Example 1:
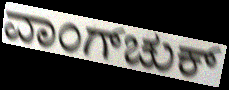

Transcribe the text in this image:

ವಾಂಗ್‌ಚುಕ್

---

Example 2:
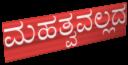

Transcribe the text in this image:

ಮಹತ್ವವಲ್ಲದ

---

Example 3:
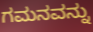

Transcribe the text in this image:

ಗಮನವನ್ನು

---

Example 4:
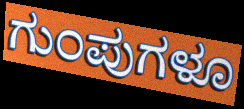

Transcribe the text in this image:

ಗುಂಪುಗಳೂ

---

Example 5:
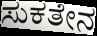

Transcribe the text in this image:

ಸುಕತೇನ